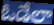
ఓడేలా